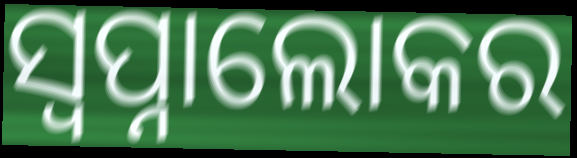
ସ୍ୱପ୍ନାଲୋକର